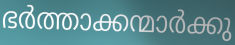
ഭർത്താക്കന്മാർക്കു